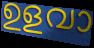
ഉളവാ